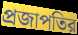
প্রজাপতির